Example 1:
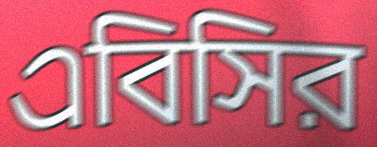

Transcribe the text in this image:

এবিসির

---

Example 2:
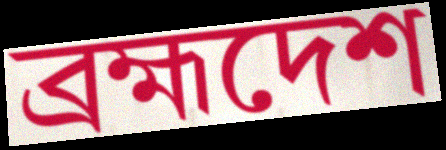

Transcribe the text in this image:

ব্রহ্মদেশ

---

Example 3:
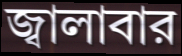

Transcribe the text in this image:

জ্বালাবার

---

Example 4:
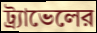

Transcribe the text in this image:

ট্র্যাভেলের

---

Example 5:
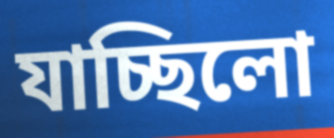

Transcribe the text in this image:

যাচ্ছিলো